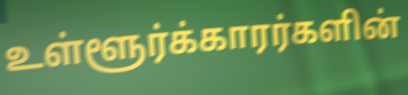
உள்ளூர்க்காரர்களின்